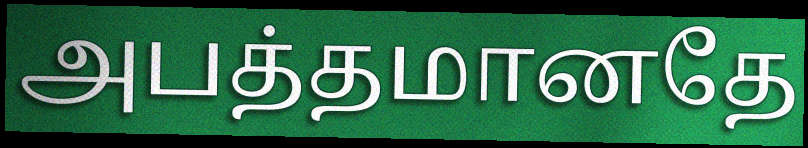
அபத்தமானதே